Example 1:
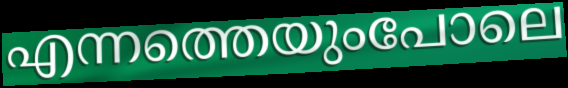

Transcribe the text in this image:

എന്നത്തെയുംപോലെ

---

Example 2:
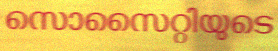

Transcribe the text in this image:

സൊസൈറ്റിയുടെ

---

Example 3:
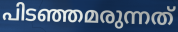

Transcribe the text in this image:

പിടഞ്ഞമരുന്നത്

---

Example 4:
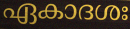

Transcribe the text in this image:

ഏകാദശഃ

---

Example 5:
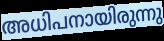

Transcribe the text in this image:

അധിപനായിരുന്നു